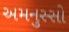
અમનુસ્સો